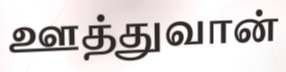
ஊத்துவான்